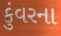
કુંવરના